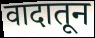
वादातून